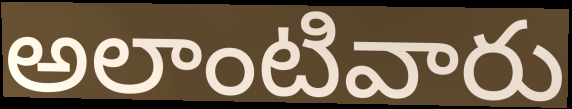
అలాంటివారు